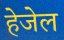
हेजेल